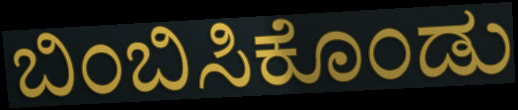
ಬಿಂಬಿಸಿಕೊಂಡು